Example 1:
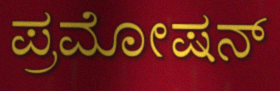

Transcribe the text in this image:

ಪ್ರಮೋಷನ್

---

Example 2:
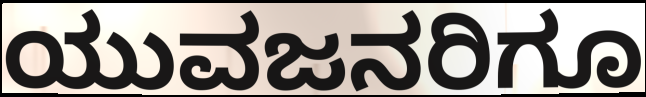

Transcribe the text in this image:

ಯುವಜನರಿಗೂ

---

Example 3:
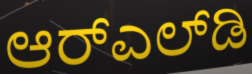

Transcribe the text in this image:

ಆರ್‌ಎಲ್‌ಡಿ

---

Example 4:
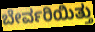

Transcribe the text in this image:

ಬೇರ್ವರಿಯಿತ್ತು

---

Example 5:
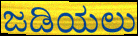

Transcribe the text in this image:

ಜಡಿಯಲು